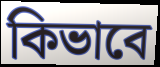
কিভাবে